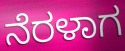
ನೆರಳಾಗ